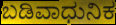
ಬಡಿವಾಧುನಿಕ